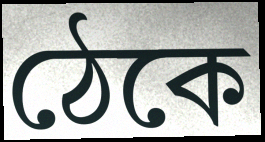
ঠেকে